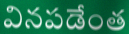
వినపడేంత